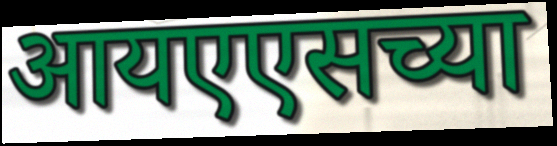
आयएएसच्या